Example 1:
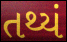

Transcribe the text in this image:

તથ્યં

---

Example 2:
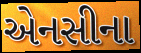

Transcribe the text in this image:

એનસીના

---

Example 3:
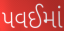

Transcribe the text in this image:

પવઈમાં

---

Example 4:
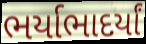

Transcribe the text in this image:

ભર્યાભાદર્યાં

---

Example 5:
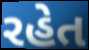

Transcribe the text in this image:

રહેત